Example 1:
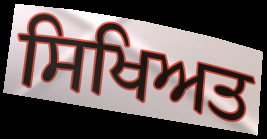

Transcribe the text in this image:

ਸਿਖਿਅਤ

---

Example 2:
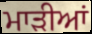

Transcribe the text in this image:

ਮਾੜੀਆਂ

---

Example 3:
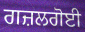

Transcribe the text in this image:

ਗਜ਼ਲਗੋਈ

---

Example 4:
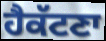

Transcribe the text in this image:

ਹੈਕੱਟਣਾ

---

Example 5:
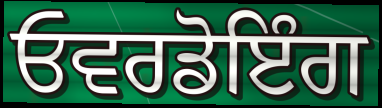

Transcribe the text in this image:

ਓਵਰਡੋਇੰਗ